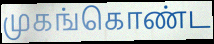
முகங்கொண்ட